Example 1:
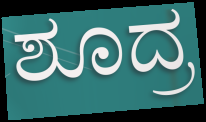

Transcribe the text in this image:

ಶೂದ್ರ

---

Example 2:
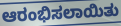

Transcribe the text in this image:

ಆರಂಭಿಸಲಾಯಿತು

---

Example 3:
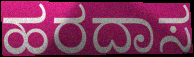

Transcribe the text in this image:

ಹರದಾಸ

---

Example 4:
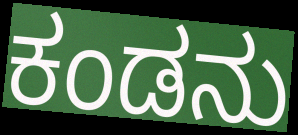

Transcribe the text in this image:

ಕಂಡನು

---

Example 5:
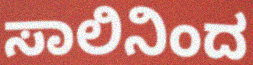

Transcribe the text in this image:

ಸಾಲಿನಿಂದ